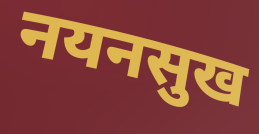
नयनसुख